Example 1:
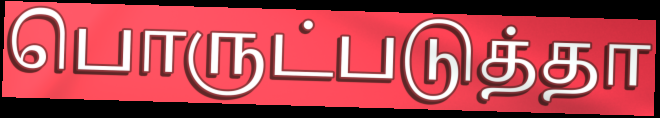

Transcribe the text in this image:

பொருட்படுத்தா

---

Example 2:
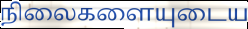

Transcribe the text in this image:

நிலைகளையுடைய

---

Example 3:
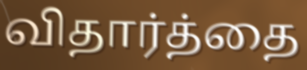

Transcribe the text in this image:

விதார்த்தை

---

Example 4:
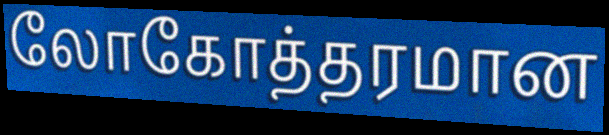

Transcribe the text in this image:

லோகோத்தரமான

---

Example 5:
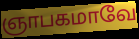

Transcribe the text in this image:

ஞாபகமாவே